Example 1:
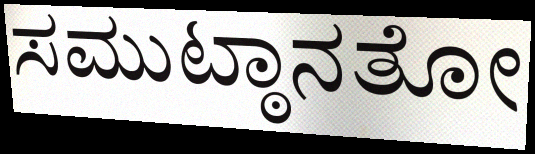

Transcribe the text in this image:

ಸಮುಟ್ಠಾನತೋ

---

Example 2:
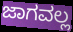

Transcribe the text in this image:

ಜಾಗವಲ್ಲ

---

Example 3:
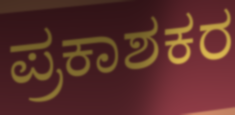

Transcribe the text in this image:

ಪ್ರಕಾಶಕರ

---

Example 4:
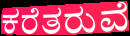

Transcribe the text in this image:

ಕರೆತರುವೆ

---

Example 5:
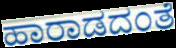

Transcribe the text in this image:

ಹಾರಾಡದಂತೆ